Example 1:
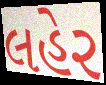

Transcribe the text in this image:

લહેર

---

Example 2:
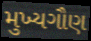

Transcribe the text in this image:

મુખ્યગૌણ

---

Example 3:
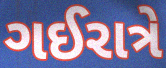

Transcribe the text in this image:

ગઈરાત્રે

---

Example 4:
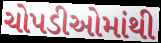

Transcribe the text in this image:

ચોપડીઓમાંથી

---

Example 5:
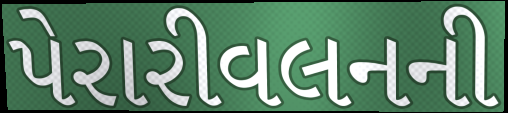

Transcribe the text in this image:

પેરારીવલનની